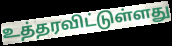
உத்தரவிட்டுள்ளது